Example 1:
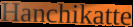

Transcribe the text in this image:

Hanchikatte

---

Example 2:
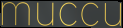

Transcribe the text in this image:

muccu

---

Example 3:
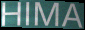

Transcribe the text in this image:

HIMA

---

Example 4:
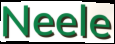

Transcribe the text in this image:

Neele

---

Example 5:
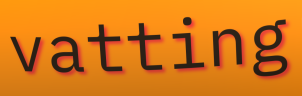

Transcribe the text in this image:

vatting